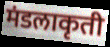
मंडलाकृती